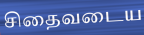
சிதைவடைய